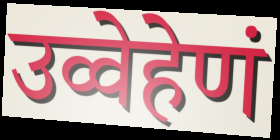
उव्वेहेणं